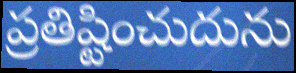
ప్రతిష్టించుదును